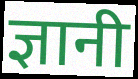
ज्ञानी